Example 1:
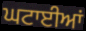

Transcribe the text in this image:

ਘਟਾਈਆਂ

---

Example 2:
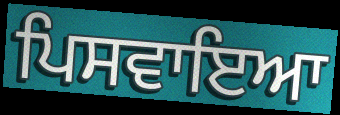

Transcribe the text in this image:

ਪਿਸਵਾਇਆ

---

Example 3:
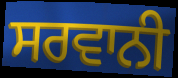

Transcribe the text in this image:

ਸਰਵਾਨੀ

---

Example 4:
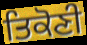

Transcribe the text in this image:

ਤਿਕੋਣੀ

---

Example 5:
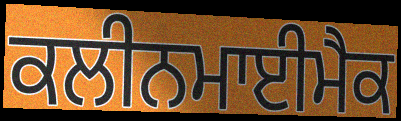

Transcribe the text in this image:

ਕਲੀਨਮਾਈਮੈਕ